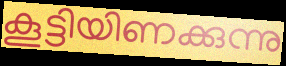
കൂട്ടിയിണക്കുന്നു